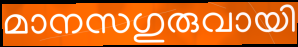
മാനസഗുരുവായി